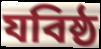
যবিষ্ঠ